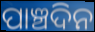
ପାଞ୍ଚଦିନ